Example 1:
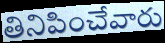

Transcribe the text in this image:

తినిపించేవారు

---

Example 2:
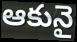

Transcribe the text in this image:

ఆకునై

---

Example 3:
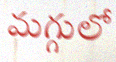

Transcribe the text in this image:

మగ్గులో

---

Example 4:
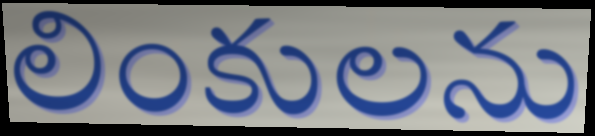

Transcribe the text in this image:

లింకులను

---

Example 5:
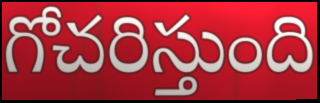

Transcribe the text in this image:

గోచరిస్తుంది